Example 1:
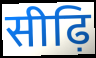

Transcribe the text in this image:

सीढ़ि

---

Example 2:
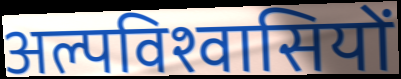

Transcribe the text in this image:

अल्पविश्वासियों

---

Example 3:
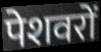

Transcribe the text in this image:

पेशवरों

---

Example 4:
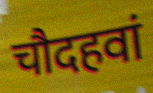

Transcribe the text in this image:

चौदहवां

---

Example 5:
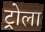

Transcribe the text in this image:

ट्रोला